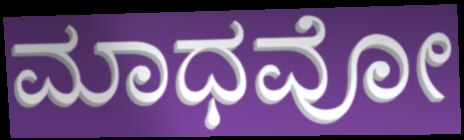
ಮಾಧವೋ